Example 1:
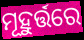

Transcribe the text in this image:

ମୂହୁର୍ତ୍ତରେ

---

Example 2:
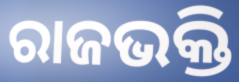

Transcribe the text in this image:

ରାଜଭକ୍ତି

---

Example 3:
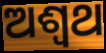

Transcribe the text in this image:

ଅଶ୍ବଥ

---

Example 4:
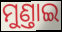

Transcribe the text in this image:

ମୁଣ୍ତାଇ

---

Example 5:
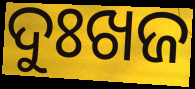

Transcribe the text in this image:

ଦୁଃଖଜ